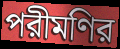
পরীমণির